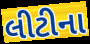
લીટીના